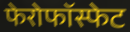
फेरोफॉस्फेट